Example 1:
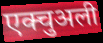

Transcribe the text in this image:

एक्चुअली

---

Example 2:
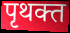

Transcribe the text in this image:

पृथक्त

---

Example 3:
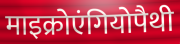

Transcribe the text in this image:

माइक्रोएंगियोपैथी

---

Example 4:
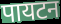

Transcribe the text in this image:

पायटन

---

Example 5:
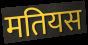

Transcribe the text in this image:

मतियस